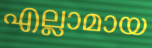
എല്ലാമായ